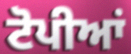
ਟੋਪੀਆਂ